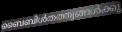
ബൈബിൾതത്ത്വങ്ങൾക്കു